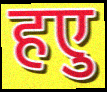
हएु